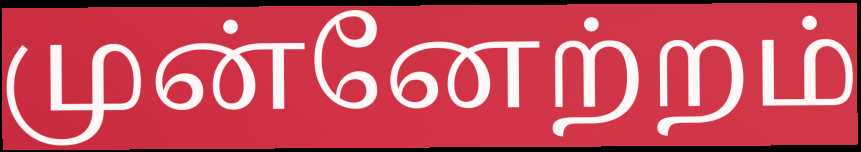
முன்னேற்றம்